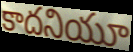
కాదనియూ